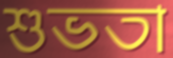
শুভতা